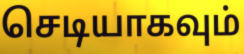
செடியாகவும்